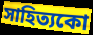
সাহিত্যকো